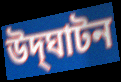
উদ্‌ঘাটন